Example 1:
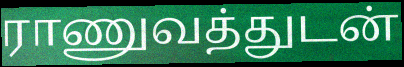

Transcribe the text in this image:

ராணுவத்துடன்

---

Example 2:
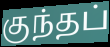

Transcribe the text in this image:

குந்தப்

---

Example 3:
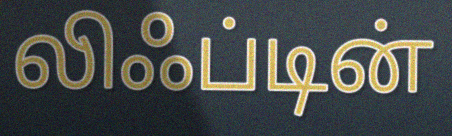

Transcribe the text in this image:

லிஃப்டின்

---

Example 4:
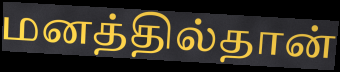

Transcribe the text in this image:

மனத்தில்தான்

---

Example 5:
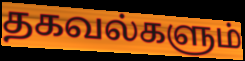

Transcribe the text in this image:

தகவல்களும்